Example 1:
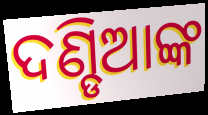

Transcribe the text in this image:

ଦଣ୍ଡିଆଙ୍କ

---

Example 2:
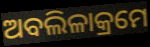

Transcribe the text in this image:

ଅବଲିଳାକ୍ରମେ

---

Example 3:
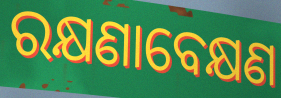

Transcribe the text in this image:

ରକ୍ଷଣାବେକ୍ଷଣ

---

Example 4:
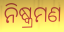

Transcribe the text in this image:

ନିଷ୍କ୍ରମଣ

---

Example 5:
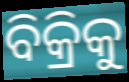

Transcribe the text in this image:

ବିକ୍ରିକୁ